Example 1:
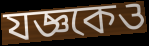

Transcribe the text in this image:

যজ্ঞকেও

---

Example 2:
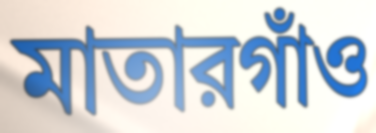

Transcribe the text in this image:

মাতারগাঁও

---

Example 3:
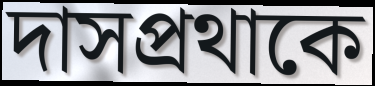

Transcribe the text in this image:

দাসপ্রথাকে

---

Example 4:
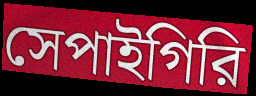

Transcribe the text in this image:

সেপাইগিরি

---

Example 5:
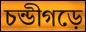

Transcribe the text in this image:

চন্ডীগড়ে